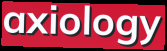
axiology